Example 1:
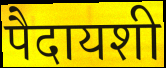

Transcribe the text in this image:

पैदायशी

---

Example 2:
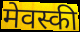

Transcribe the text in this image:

मेवस्की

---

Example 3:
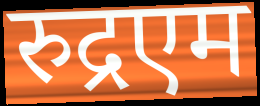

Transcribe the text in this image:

रुद्रएम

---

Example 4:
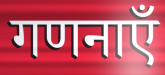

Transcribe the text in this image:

गणनाएँ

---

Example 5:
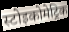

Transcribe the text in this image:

स्टोइकोमेट्रिक